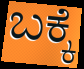
ಬಕ್ಕೆ